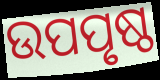
ଉପପୃଷ୍ଠ